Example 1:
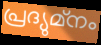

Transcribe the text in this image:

പ്രദ്യുമ്നം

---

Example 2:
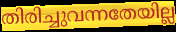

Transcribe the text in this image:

തിരിച്ചുവന്നതേയില്ല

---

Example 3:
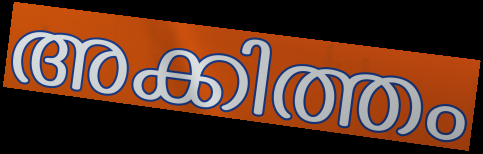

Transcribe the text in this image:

അക്കിത്തം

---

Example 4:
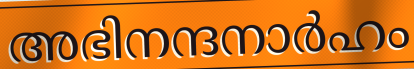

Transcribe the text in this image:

അഭിനന്ദനാർഹം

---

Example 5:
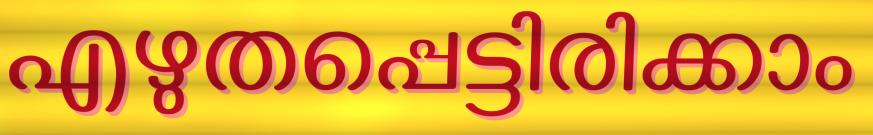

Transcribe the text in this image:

എഴുതപ്പെട്ടിരിക്കാം